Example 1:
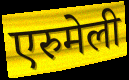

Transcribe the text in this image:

एरुमेली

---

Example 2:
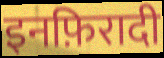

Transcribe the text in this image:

इनफ़िरादी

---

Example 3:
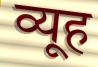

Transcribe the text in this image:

व्‍यूह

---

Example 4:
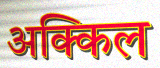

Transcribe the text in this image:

अक्किल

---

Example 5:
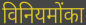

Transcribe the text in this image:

विनियमोंका